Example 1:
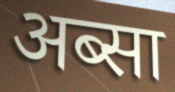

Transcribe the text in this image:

अब्सा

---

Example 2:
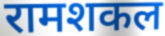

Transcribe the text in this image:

रामशकल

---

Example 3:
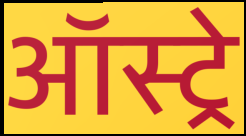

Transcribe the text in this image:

ऑस्ट्रे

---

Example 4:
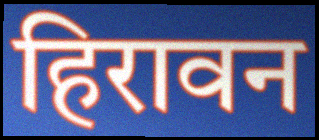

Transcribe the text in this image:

हिरावन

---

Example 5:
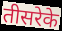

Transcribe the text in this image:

तीसरेके